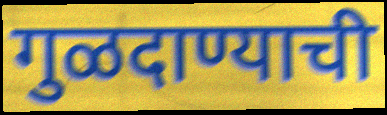
गुळदाण्याची